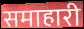
समाहारी